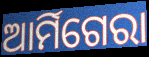
ଆର୍ମିଗେରା